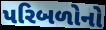
પરિબળોનો